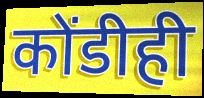
कोंडीही